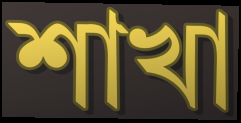
শাখা